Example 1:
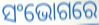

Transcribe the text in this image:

ସଂଭୋଗରେ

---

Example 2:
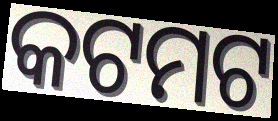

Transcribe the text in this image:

କଟମଟ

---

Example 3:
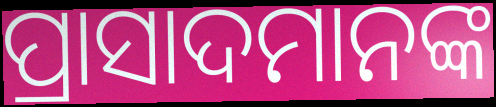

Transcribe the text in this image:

ପ୍ରାସାଦମାନଙ୍କ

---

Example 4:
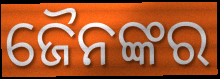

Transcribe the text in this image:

ଜୈନଙ୍କର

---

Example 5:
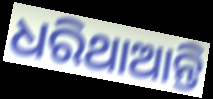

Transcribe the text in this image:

ଧରିଥାଆନ୍ତି